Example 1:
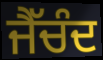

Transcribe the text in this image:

ਜੈੱਚੰਦ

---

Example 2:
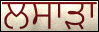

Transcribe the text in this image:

ਲਸਾੜਾ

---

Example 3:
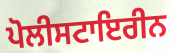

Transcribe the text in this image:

ਪੋਲੀਸਟਾਇਰੀਨ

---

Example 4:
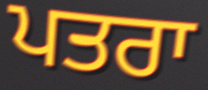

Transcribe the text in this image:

ਪਤਰਾ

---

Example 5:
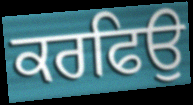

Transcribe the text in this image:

ਕਰਫਿਉ